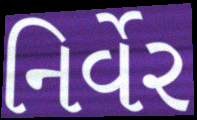
નિર્વેર